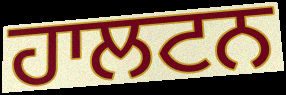
ਹਾਲਟਨ